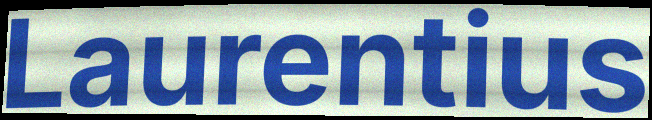
Laurentius